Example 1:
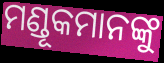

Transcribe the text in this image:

ମଣ୍ଡୂକମାନଙ୍କୁ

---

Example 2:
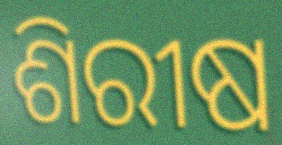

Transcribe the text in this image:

ଶିରୀଷ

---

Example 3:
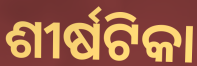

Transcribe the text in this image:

ଶୀର୍ଷଟିକା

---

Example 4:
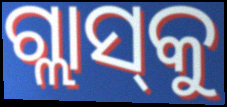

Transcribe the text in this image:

ଗ୍ଲାସ୍‌କୁ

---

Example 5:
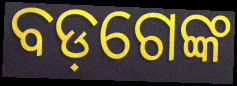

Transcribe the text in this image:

ବଡ଼ଗେଙ୍କ